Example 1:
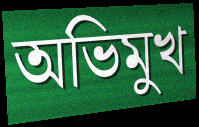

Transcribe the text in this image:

অভিমুখ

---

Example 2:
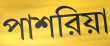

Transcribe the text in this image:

পাশরিয়া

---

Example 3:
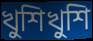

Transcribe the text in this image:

খুশিখুশি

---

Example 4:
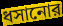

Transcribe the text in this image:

ধসানোর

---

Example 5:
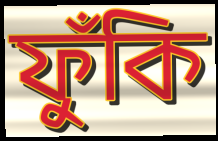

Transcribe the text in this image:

ফুঁকি